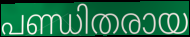
പണ്ഡിതരായ